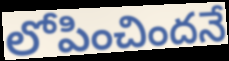
లోపించిందనే